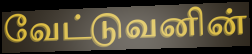
வேட்டுவனின்